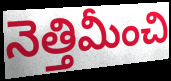
నెత్తిమీంచి